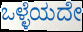
ಒಳ್ಳೆಯದೇ